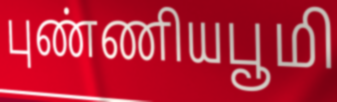
புண்ணியபூமி